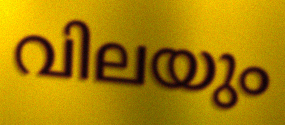
വിലയും